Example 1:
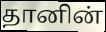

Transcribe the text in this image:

தானின்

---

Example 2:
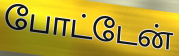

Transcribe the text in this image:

போட்டேன்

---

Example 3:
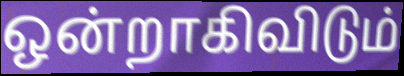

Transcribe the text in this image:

ஒன்றாகிவிடும்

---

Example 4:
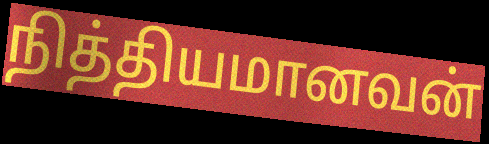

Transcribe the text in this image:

நித்தியமானவன்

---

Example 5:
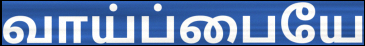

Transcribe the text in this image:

வாய்ப்பையே